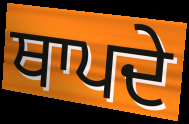
ਥਾਪਦੇ